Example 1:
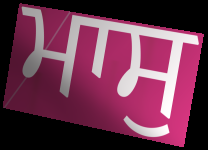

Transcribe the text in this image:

ਮਾਸੁ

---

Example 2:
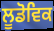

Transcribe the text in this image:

ਲੂਡੋਵਿਕ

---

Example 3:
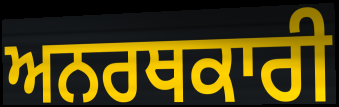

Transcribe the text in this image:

ਅਨਰਥਕਾਰੀ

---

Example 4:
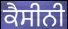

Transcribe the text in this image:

ਕੈਸੀਨੀ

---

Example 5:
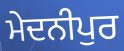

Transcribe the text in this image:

ਮੇਦਨੀਪੁਰ